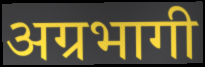
अग्रभागी